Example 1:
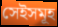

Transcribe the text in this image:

সেইসমূহ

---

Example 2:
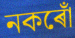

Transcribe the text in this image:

নকৰোঁ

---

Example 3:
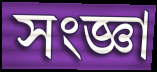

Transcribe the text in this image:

সংজ্ঞা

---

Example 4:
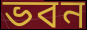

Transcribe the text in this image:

ভবন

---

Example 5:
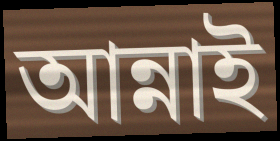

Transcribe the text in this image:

আন্নাই